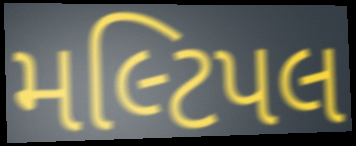
મલ્ટિપલ